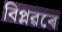
বিপ্লৱৰে